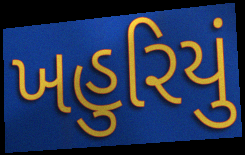
ખહુરિયું